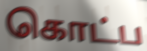
கொட்ப